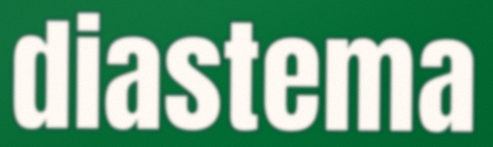
diastema